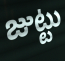
జుట్టు